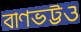
বাণভট্টও